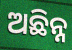
ଅଛିନ୍ନ